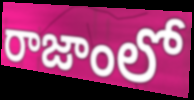
రాజాంలో